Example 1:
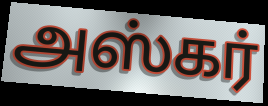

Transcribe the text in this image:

அஸ்கர்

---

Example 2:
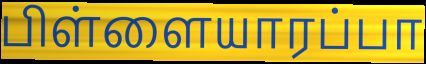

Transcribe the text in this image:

பிள்ளையாரப்பா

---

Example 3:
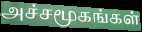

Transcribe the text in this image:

அச்சமூகங்கள்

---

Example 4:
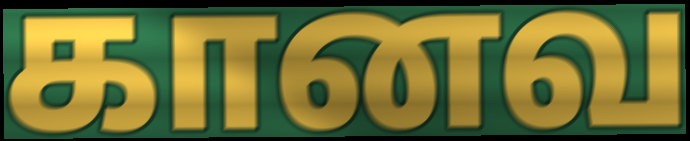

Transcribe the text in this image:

கானவ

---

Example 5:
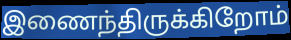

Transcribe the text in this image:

இணைந்திருக்கிறோம்